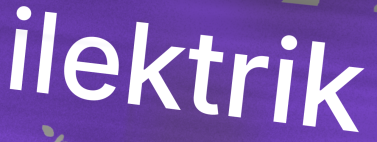
ilektrik